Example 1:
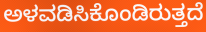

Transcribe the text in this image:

ಅಳವಡಿಸಿಕೊಂಡಿರುತ್ತದೆ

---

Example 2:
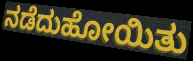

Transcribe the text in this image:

ನಡೆದುಹೋಯಿತು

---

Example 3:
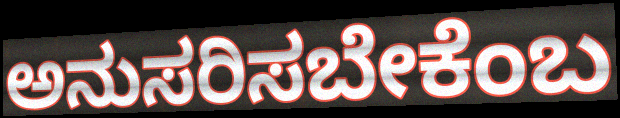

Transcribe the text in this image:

ಅನುಸರಿಸಬೇಕೆಂಬ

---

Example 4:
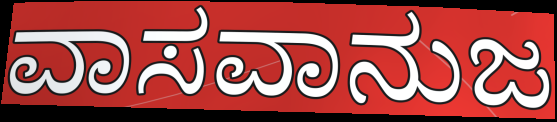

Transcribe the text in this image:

ವಾಸವಾನುಜ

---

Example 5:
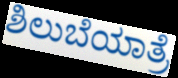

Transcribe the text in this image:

ಶಿಲುಬೆಯಾತ್ರೆ